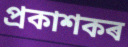
প্ৰকাশকৰ